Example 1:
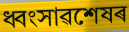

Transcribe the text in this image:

ধ্বংসাৱশেষৰ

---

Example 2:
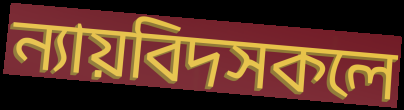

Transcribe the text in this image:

ন্যায়বিদসকলে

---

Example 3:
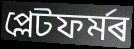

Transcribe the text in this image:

প্লেটফৰ্মৰ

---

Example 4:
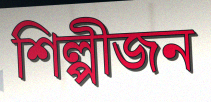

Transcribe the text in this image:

শিল্পীজন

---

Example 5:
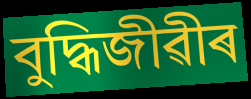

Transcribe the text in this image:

বুদ্ধিজীৱীৰ